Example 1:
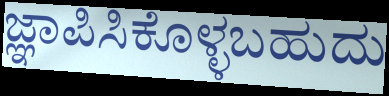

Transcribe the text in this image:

ಜ್ಞಾಪಿಸಿಕೊಳ್ಳಬಹುದು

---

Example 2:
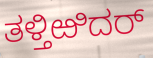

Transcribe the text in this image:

ತಳ್ತಿಱಿದರ್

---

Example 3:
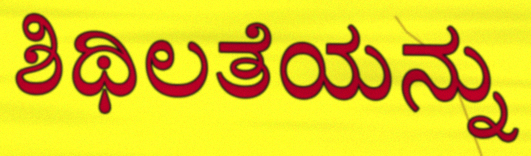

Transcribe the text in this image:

ಶಿಥಿಲತೆಯನ್ನು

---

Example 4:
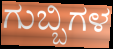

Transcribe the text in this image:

ಗುಬ್ಬಿಗಳ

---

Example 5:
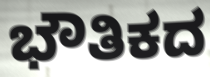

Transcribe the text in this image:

ಭೌತಿಕದ